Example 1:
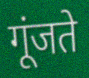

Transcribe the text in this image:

गूंजते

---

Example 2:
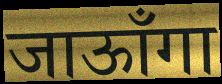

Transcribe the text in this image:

जाऊाँगा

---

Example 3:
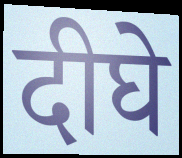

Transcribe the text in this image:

दीघे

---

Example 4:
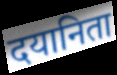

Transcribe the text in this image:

दयानिता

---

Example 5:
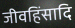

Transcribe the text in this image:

जीवहिंसादि